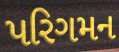
પરિગમન